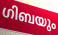
ഗിബയും